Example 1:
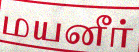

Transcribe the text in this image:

மயனீர்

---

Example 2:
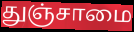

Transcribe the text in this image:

துஞ்சாமை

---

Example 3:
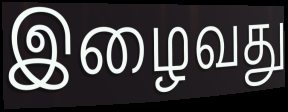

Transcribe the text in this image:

இழைவது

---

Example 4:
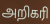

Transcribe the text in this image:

அறிகரி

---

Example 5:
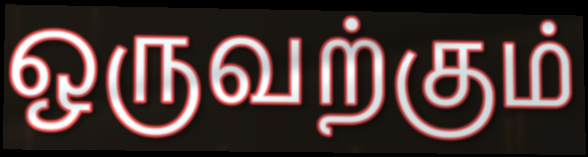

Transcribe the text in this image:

ஒருவற்கும்